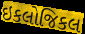
ઇકલોજિકલ